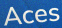
Aces